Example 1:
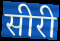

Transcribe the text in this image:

सीरी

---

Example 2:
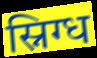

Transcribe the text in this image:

स्निग्ध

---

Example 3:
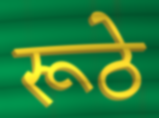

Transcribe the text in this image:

रूठे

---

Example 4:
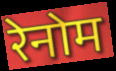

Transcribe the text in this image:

रेनोम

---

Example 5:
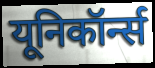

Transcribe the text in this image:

यूनिकॉर्न्स